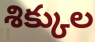
శిక్కుల